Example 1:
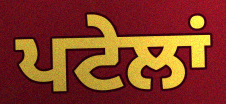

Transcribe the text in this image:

ਪਟੇਲਾਂ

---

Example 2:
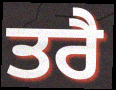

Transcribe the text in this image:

ਤਰੈ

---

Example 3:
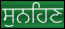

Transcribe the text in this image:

ਸੁਨਹਿਣ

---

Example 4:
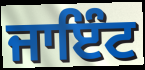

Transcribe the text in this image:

ਜਾਇੰਟ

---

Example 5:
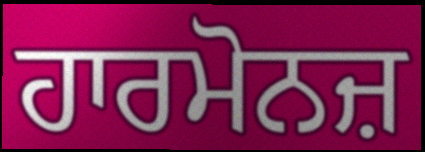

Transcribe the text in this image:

ਹਾਰਮੋਨਜ਼